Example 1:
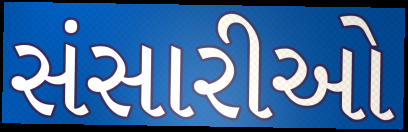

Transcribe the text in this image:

સંસારીઓ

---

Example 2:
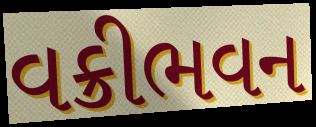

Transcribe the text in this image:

વક્રીભવન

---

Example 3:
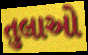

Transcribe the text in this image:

તુલાઓ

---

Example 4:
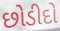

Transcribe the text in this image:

છોડીદો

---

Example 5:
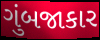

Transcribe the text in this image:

ગુંબજાકાર